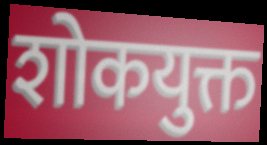
शोकयुक्त